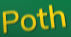
Poth